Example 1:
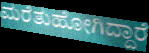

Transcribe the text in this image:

ಮರೆತುಹೋಗಿದ್ದಾರೆ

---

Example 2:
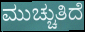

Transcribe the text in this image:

ಮುಚ್ಚುತಿದೆ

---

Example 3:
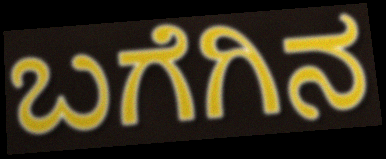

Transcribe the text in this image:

ಬಗೆಗಿನ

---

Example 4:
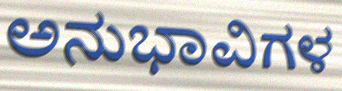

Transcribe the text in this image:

ಅನುಭಾವಿಗಳ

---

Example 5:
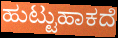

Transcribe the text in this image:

ಹುಟ್ಟುಹಾಕದೆ